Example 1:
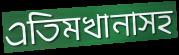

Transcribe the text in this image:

এতিমখানাসহ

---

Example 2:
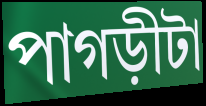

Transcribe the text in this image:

পাগড়ীটা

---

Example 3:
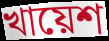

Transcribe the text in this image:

খায়েশ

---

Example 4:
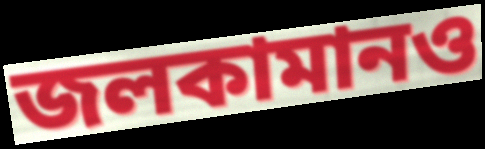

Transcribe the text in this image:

জলকামানও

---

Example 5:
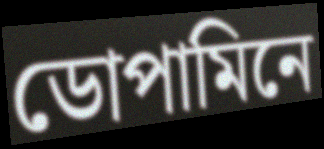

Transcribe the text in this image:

ডোপামিনে